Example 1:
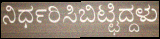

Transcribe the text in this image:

ನಿರ್ಧರಿಸಿಬಿಟ್ಟಿದ್ದಳು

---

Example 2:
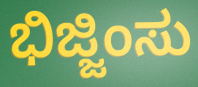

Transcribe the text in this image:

ಭಿಜ್ಜಿಂಸು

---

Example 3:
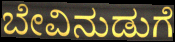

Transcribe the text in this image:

ಬೇವಿನುಡುಗೆ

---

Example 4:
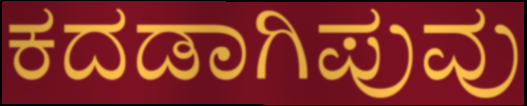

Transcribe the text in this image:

ಕದಡಾಗಿಪುವು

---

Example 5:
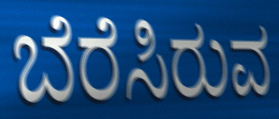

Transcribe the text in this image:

ಬೆರೆಸಿರುವ